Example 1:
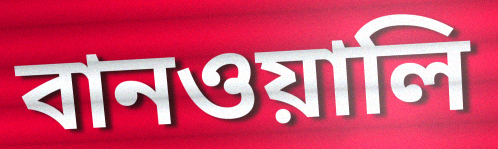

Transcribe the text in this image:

বানওয়ালি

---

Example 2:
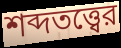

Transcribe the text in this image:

শব্দতত্ত্বের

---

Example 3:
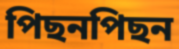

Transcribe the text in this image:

পিছনপিছন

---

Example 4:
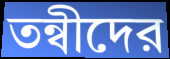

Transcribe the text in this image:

তন্বীদের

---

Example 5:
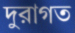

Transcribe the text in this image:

দুরাগত